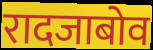
रादजाबोव